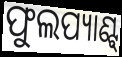
ଫୁଲପ୍ୟାଣ୍ଟ୍